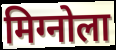
मिग्नोला